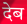
देब